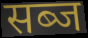
सब्ज